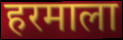
हरमाला